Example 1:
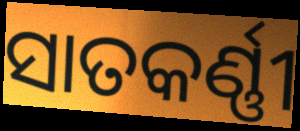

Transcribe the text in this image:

ସାତକର୍ଣ୍ଣୀ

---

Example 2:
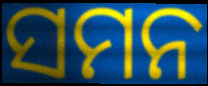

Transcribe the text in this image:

ସମନ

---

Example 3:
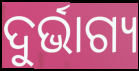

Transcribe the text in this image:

ଦୁର୍ଭାଗ୍ୟ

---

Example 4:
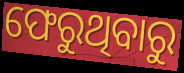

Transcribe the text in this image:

ଫେରୁଥିବାରୁ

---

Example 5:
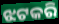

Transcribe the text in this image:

ଝଟକରି